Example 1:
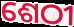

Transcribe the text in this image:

ଶେଠୀ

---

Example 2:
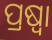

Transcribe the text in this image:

ପ୍ରଷ୍ୱା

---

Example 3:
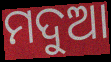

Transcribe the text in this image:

ମଦୁଆ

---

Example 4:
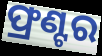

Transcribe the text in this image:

ଫ୍ରଣ୍ଟର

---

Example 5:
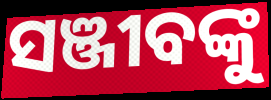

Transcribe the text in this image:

ସଞ୍ଜୀବଙ୍କୁ